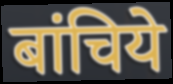
बांचिये